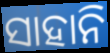
ସାହାନି